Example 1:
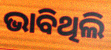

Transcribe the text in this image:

ଭାବିଥିଲି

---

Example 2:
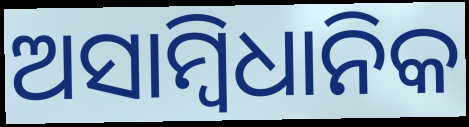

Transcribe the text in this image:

ଅସାମ୍ବିଧାନିକ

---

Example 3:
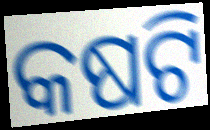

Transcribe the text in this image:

କଷଟି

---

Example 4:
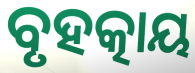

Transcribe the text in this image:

ବୃହତ୍କାୟ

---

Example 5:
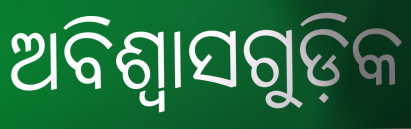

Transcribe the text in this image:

ଅବିଶ୍ଵାସଗୁଡ଼ିକ